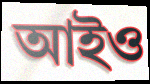
আইও